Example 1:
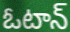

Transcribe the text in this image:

ఓటాన్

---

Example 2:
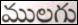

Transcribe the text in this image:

ములగు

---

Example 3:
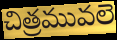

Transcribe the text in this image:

చిత్రమువలె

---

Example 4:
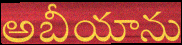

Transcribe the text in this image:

అబీయాను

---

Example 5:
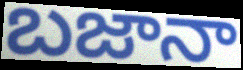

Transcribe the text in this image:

బజానా